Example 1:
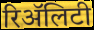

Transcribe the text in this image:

रिॲलिटी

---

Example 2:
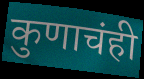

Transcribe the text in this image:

कुणाचंही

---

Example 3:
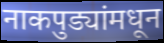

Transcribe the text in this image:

नाकपुड्यांमधून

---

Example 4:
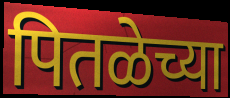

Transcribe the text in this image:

पितळेच्या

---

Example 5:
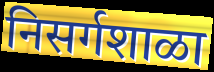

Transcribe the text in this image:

निसर्गशाळा